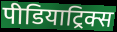
पीडियाट्रिक्स